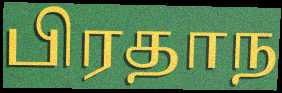
பிரதாந